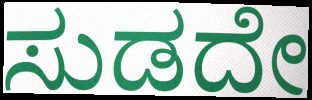
ಸುಡದೇ